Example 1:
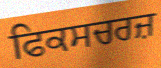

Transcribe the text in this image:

ਫਿਕਸਚਰਜ਼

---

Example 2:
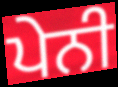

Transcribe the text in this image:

ਪੇਨੀ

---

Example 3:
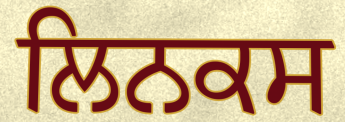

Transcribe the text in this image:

ਲਿਨਕਸ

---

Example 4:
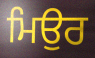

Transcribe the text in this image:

ਮਿਉਰ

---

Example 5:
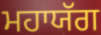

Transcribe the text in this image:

ਮਹਾਯੱਗ